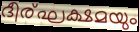
ദീര്ഘക്ഷമയും